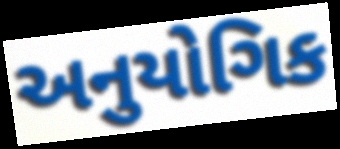
અનુયોગિક